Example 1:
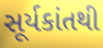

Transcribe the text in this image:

સૂર્યકાંતથી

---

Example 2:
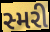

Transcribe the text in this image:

સ્મરી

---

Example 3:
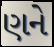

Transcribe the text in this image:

ણને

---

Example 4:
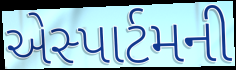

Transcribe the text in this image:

એસ્પાર્ટમની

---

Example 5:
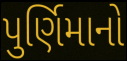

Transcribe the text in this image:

પુર્ણિમાનો